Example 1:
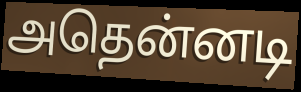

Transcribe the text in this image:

அதென்னடி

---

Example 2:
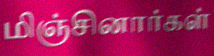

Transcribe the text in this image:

மிஞ்சினார்கள்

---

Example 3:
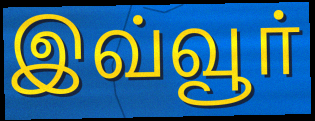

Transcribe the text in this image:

இவ்வூர்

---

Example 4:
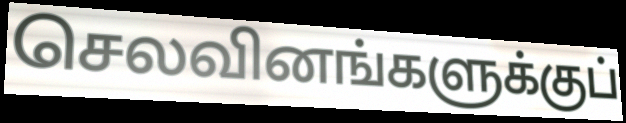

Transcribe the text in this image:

செலவினங்களுக்குப்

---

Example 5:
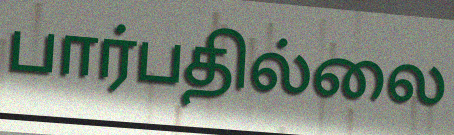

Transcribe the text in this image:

பார்பதில்லை